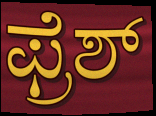
ಫ್ರೆಶ್